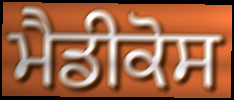
ਮੈਡੀਕੋਸ